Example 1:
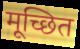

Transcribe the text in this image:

मूच्छित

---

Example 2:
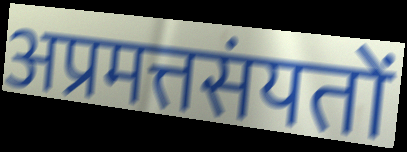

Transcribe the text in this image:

अप्रमत्तसंयतों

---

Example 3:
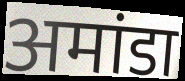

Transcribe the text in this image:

अमांडा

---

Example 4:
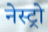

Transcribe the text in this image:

नेस्ट्रो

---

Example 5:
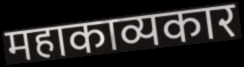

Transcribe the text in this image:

महाकाव्यकार